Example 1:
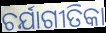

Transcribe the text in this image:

ଚର୍ଯାଗୀତିକା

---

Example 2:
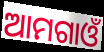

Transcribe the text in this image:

ଆମଗାଓଁ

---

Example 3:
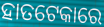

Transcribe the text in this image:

ହାତଟେକାରେ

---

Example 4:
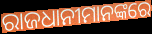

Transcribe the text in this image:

ରାଜଧାନୀମାନଙ୍କରେ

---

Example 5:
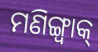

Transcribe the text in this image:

ମଣିଙ୍ଗ୍ୱାକ୍